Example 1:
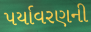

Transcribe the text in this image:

પર્યાવરણની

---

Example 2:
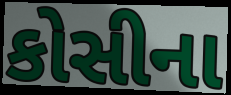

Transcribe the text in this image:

કોસીના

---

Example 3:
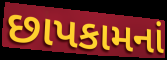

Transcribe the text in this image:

છાપકામનાં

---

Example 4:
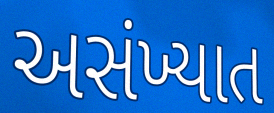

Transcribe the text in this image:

અસંખ્યાત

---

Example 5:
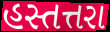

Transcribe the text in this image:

હસ્તત્તરા